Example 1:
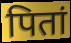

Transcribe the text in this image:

पितां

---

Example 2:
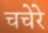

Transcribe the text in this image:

चचेरे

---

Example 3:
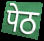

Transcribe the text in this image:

पेठ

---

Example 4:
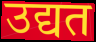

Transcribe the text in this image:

उद्यत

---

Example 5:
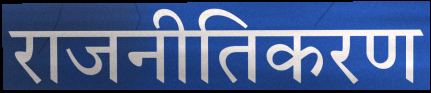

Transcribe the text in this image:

राजनीतिकरण